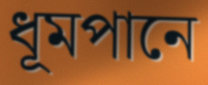
ধূমপানে